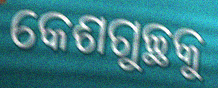
କେଶଗୁଚ୍ଛକୁ